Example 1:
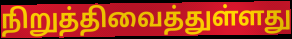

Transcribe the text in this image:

நிறுத்திவைத்துள்ளது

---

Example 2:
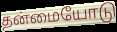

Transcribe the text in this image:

தன்மையோடு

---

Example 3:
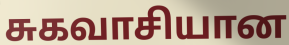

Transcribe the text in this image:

சுகவாசியான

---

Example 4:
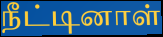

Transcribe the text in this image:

நீட்டினாள்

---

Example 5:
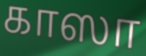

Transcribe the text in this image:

காஸா